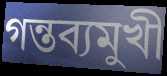
গন্তব্যমুখী